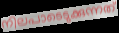
നിലപാടെടുക്കുന്നത്